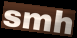
smh